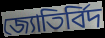
জ্যোতির্বিদ